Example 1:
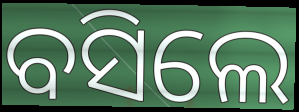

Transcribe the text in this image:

ବସିଲେ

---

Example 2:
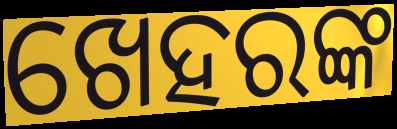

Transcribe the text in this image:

ଖେହରଙ୍କ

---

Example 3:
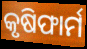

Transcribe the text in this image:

କୃଷିଫାର୍ମ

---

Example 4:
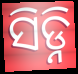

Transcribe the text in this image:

ସିଡ୍ନି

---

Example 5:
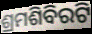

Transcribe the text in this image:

ଶ୍ରମଶିବିରଟି